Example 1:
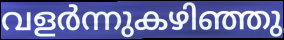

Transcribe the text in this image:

വളർന്നുകഴിഞ്ഞു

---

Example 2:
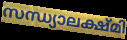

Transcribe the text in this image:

സന്ധ്യാലക്ഷ്മി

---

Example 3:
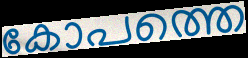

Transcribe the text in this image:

കോപത്തെ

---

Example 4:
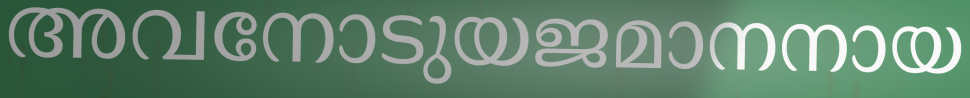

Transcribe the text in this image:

അവനോടുയജമാനനായ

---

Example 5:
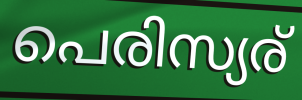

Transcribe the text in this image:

പെരിസ്യര്